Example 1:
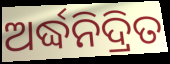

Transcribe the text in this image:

ଅର୍ଦ୍ଧନିଦ୍ରିତ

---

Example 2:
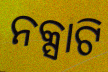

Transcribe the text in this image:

ନକ୍ସାଟି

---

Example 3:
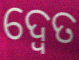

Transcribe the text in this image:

ଦ୍ବେତ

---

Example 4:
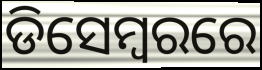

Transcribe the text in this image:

ଡିସେମ୍ବରରେ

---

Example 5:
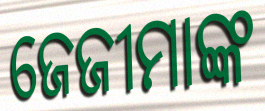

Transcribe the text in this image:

ଜେଜୀମାଙ୍କ